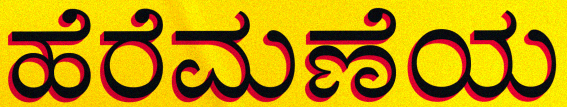
ಹೆರೆಮಣೆಯ